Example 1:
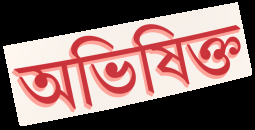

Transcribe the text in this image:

অভিষিক্ত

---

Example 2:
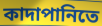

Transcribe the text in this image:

কাদাপানিতে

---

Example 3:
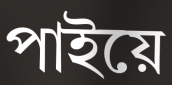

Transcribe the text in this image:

পাইয়ে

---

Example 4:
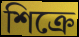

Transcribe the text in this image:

শিক্রে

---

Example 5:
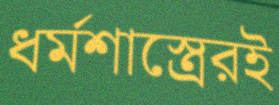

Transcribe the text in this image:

ধর্মশাস্ত্রেরই